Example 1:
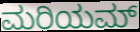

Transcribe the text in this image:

ಮರಿಯಮ್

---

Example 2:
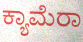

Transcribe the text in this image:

ಕ್ಯಾಮೆರಾ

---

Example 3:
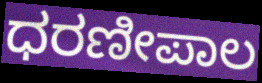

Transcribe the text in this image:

ಧರಣೀಪಾಲ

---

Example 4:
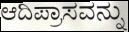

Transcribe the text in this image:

ಆದಿಪ್ರಾಸವನ್ನು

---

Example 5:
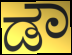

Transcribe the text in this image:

ಡೌ